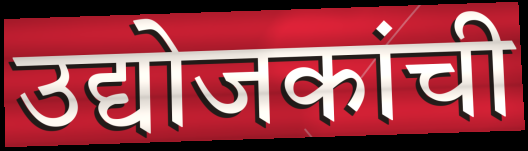
उद्योजकांची